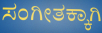
ಸಂಗೀತಕ್ಕಾಗಿ